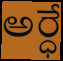
అర్ధే